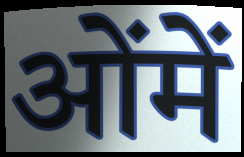
ओंमें